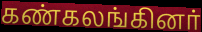
கண்கலங்கினர்